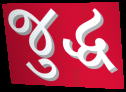
જુદ્ધ